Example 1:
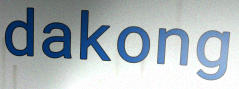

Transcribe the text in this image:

dakong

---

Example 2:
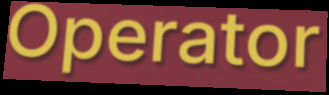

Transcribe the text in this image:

Operator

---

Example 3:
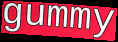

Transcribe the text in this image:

gummy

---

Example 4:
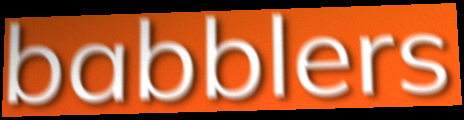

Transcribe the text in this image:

babblers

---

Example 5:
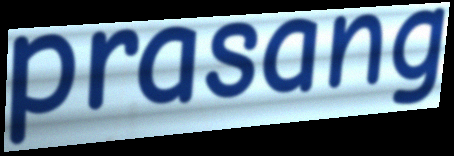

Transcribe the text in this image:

prasang